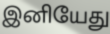
இனியேது